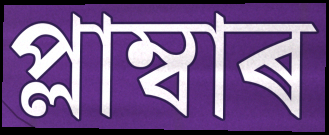
প্লাম্বাৰ